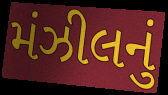
મંઝીલનું